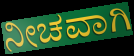
ನೀಚವಾಗಿ